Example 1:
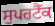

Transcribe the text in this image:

ਸੁਪਰਟੈੱਕ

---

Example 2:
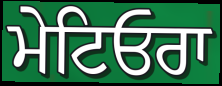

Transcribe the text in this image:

ਮੇਟਿਓਰਾ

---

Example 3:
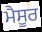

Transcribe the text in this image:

ਮੈਸੂਰ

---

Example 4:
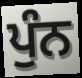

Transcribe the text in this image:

ਪੁੰਨ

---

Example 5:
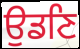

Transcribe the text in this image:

ਉਡਣਿ